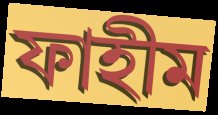
ফাহীম